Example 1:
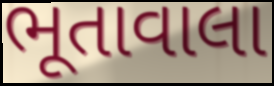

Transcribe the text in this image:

ભૂતાવાલા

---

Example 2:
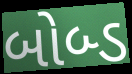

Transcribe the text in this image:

બોબ્ડ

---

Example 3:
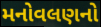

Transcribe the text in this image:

મનોવલણનો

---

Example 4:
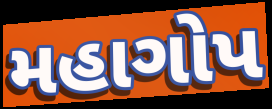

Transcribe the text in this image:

મહાગોપ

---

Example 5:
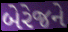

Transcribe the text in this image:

બેરેજને